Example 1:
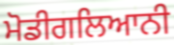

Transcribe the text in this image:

ਮੋਡੀਗਲਿਆਨੀ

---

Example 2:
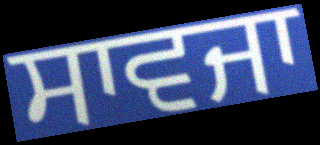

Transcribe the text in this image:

ਸਾਵਜਾ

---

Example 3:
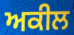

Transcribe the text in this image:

ਅਕੀਲ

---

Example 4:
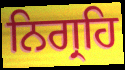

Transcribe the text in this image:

ਨਿਗ੍ਰਹਿ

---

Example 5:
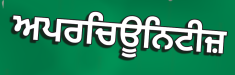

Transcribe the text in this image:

ਅਪਰਚਿਊਨਿਟੀਜ਼